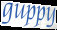
guppy